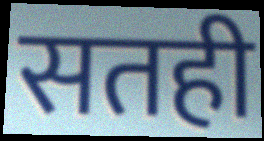
सतही